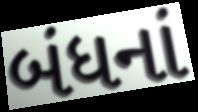
બંધનાં